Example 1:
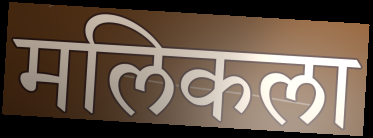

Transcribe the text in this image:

मलिकला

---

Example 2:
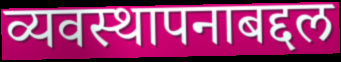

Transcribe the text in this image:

व्यवस्थापनाबद्दल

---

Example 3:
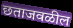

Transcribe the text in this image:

छताजवळील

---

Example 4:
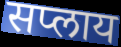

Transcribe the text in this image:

सप्लाय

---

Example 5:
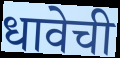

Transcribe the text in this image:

धावेची